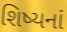
શિષ્યનાં